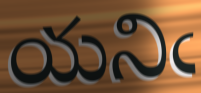
యనిఁ